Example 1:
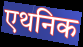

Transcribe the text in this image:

एथनिक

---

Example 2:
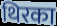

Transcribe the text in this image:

थिरका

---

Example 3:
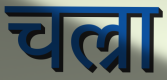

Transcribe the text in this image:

चल्रा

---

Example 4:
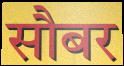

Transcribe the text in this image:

सौबर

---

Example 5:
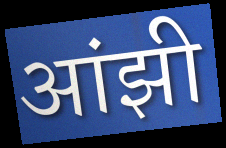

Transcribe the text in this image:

आंझी